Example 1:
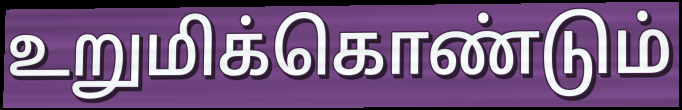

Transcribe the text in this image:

உறுமிக்கொண்டும்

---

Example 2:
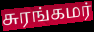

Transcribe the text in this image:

சுரங்கமர்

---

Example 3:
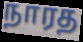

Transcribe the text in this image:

நாரத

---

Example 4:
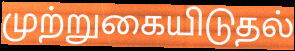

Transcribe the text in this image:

முற்றுகையிடுதல்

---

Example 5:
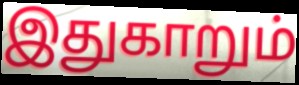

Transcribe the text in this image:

இதுகாறும்